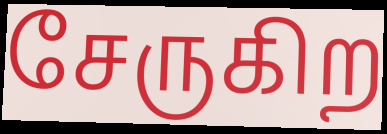
சேருகிற